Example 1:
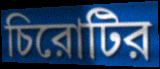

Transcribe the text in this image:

চিরোটির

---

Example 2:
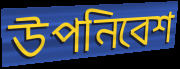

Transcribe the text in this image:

উপনিবেশ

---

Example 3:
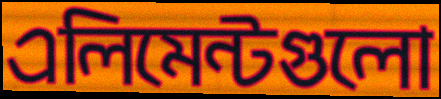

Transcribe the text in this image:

এলিমেন্টগুলো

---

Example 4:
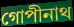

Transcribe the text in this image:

গোপীনাথ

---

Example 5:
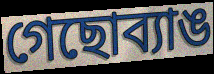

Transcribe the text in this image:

গেছোব্যাঙ